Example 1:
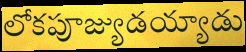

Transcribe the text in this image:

లోకపూజ్యుడయ్యాడు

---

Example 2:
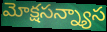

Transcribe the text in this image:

మోక్షసన్న్యాస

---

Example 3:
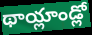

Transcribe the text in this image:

థాయ్లాండ్లో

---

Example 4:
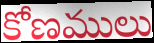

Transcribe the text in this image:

కోణములు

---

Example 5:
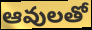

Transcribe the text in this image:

ఆవులతో